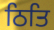
ਠਿਤਿ